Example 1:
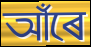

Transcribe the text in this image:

আঁৰে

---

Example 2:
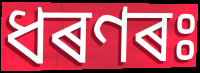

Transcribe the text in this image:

ধৰণৰঃ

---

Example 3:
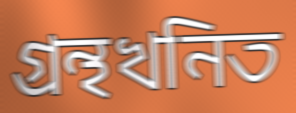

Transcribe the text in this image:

গ্ৰন্থখনিত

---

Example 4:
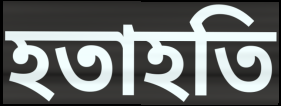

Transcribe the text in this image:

হতাহতি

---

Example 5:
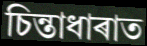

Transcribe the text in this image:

চিন্তাধাৰাত